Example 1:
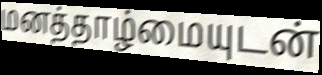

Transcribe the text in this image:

மனத்தாழ்மையுடன்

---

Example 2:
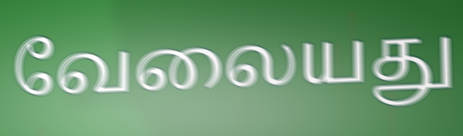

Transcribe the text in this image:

வேலையது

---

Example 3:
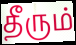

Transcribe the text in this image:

தீரும்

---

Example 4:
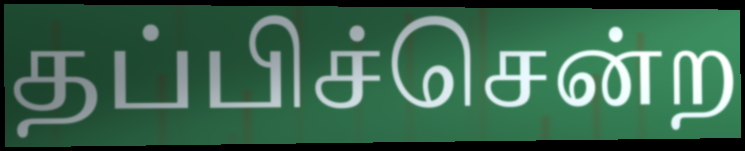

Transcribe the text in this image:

தப்பிச்சென்ற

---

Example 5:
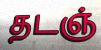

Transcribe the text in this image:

தடஞ்